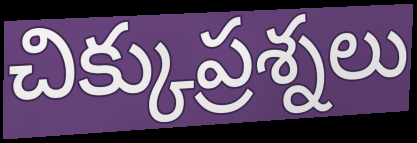
చిక్కుప్రశ్నలు